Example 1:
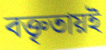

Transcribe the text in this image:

বক্তৃতায়ই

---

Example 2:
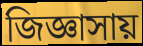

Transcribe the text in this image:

জিজ্ঞাসায়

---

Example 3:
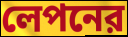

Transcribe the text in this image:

লেপনের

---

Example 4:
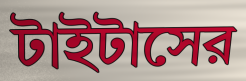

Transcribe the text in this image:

টাইটাসের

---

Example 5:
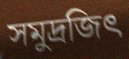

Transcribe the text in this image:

সমুদ্রজিৎ